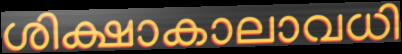
ശിക്ഷാകാലാവധി